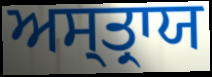
ਅਸ੍ਤ੍ਰਾਯ